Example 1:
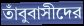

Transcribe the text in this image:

তাঁবুবাসীদের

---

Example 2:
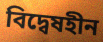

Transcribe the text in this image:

বিদ্বেষহীন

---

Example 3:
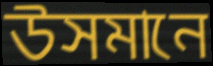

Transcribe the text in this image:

উসমানে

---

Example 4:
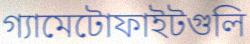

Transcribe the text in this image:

গ্যামেটোফাইটগুলি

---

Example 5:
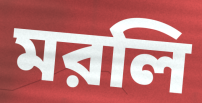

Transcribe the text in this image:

মরলি